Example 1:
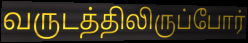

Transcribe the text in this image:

வருடத்திலிருப்போர்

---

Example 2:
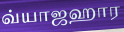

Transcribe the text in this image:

வ்யாஜஹார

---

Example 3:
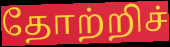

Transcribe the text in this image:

தோற்றிச்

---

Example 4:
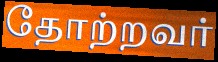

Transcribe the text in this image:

தோற்றவர்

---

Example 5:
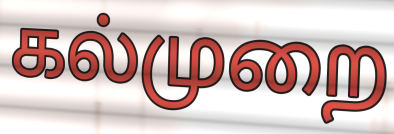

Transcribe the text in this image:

கல்முறை